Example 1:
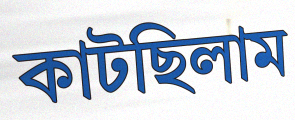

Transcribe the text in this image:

কাটছিলাম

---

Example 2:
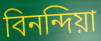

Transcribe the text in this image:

বিনন্দিয়া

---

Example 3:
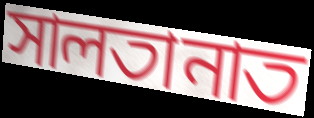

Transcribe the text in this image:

সালতানাত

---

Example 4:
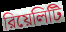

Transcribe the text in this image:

রিয়েলিটি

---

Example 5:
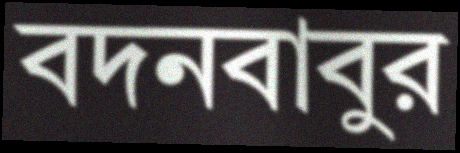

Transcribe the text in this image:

বদনবাবুর